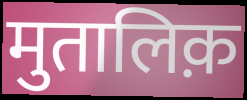
मुतालिक़